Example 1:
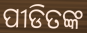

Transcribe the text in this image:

ପୀଡିତଙ୍କ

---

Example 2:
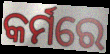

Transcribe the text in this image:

କର୍ମରେ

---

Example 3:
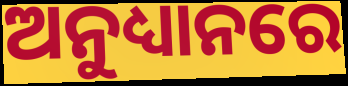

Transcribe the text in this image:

ଅନୁଧ୍ୟାନରେ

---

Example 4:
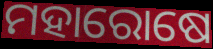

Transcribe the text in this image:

ମହାରୋଷେ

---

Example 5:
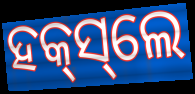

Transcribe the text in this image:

ହକ୍‌ସ୍‌ଲେ